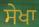
ਸੇਖਾ